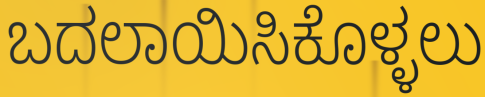
ಬದಲಾಯಿಸಿಕೊಳ್ಳಲು